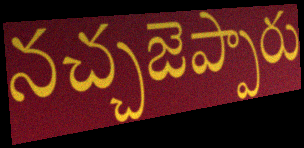
నచ్చజెప్పారు